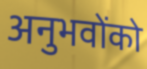
अनुभवोंको